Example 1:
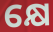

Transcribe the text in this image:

କ୍ଷେ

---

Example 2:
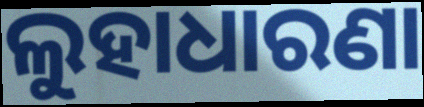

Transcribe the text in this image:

ଲୁହାଧାରଣା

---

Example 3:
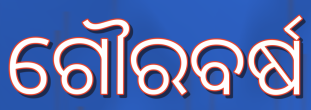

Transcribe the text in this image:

ଗୌରବର୍ଷ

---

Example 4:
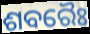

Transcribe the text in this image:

ଶବରୈଃ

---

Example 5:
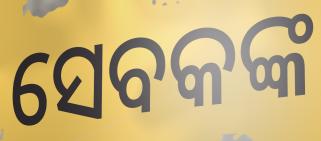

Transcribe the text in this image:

ସେବକଙ୍କ